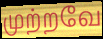
முற்றவே